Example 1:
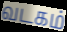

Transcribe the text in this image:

வடகம்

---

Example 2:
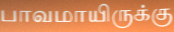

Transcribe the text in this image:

பாவமாயிருக்கு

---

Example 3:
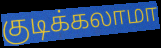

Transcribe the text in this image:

குடிக்கலாமா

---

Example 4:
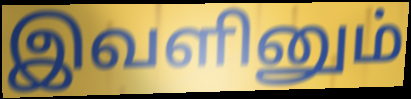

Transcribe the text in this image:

இவளினும்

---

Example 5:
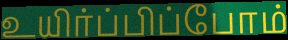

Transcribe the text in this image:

உயிர்ப்பிப்போம்